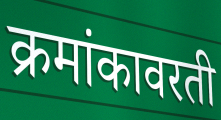
क्रमांकावरती